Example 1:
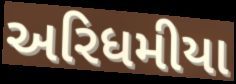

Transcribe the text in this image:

અરિધમીયા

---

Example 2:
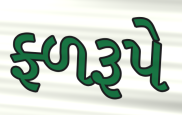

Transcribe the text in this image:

ફ્ળરૂપે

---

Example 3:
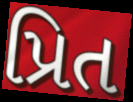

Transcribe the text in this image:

પ્રિત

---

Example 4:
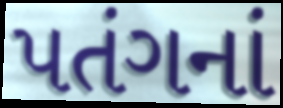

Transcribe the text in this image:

પતંગનાં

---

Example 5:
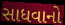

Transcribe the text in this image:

સાધવાનો